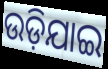
ଉଡ଼ିଯାଇ